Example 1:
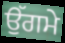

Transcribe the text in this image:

ਉੱਗਮੇ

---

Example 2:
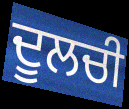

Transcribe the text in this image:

ਦੂਲਚੀ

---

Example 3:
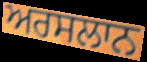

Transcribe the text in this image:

ਅਰਸਲਾਨ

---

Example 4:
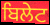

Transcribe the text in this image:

ਬਿਲੇਟ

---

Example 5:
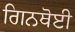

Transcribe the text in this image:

ਗਿਨਥੋਈ